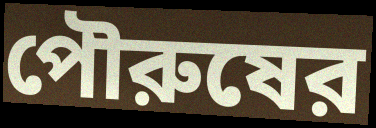
পৌরুষের